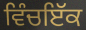
ਵਿੰਚਇੱਕ